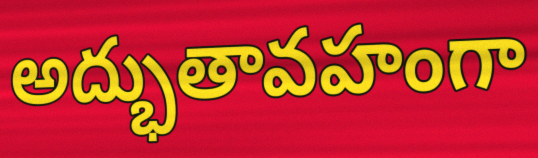
అద్భుతావహంగా